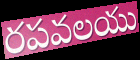
రపవలయు